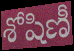
శోషిణీ